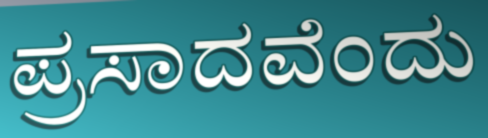
ಪ್ರಸಾದವೆಂದು